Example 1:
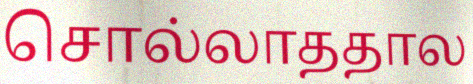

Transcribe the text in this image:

சொல்லாததால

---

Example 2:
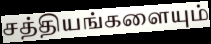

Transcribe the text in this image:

சத்தியங்களையும்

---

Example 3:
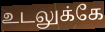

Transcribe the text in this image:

உடலுக்கே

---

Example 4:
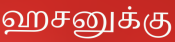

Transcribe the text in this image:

ஹசனுக்கு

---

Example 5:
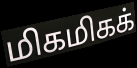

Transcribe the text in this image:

மிகமிகக்